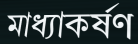
মাধ্যাকৰ্ষণ